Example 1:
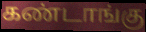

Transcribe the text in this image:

கண்டாங்கு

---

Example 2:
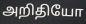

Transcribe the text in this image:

அறிதியோ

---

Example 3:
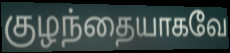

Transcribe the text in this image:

குழந்தையாகவே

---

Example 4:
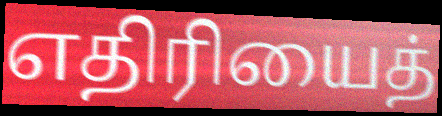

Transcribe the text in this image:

எதிரியைத்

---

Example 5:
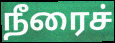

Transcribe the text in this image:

நீரைச்